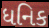
ધનિક